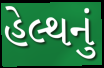
હેલ્થનું